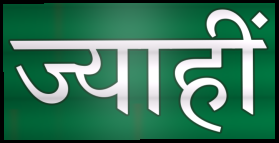
ज्याहीं